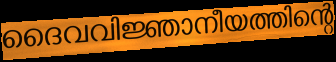
ദൈവവിജ്ഞാനീയത്തിന്റെ